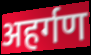
अहर्गण